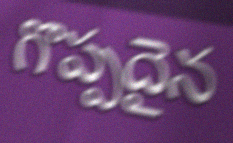
గొప్పదైన